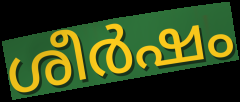
ശീർഷം